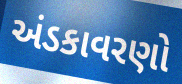
અંડકાવરણો